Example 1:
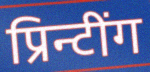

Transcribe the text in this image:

प्रिन्टींग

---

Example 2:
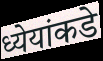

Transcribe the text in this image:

ध्येयांकडे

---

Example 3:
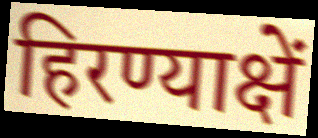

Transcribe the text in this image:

हिरण्याक्षें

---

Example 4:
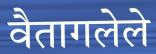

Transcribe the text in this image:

वैतागलेले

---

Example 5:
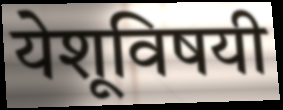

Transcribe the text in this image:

येशूविषयी